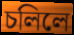
চলিলে